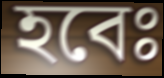
হবেঃ